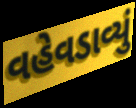
વહેવડાવ્યું